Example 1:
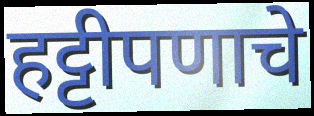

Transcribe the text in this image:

हट्टीपणाचे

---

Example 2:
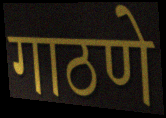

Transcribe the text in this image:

गाठणे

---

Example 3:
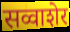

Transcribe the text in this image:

सव्वाशेर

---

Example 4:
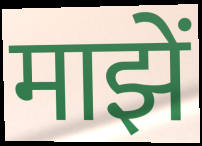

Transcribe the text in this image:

माझें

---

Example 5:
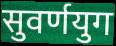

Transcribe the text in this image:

सुवर्णयुग